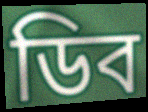
ডিব